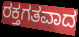
ರಕ್ತಗತವಾದ